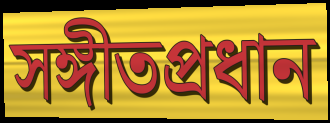
সঙ্গীতপ্রধান